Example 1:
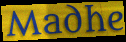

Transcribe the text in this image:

Madhe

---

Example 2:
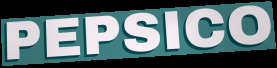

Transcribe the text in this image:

PEPSICO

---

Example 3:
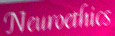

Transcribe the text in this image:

Neuroethics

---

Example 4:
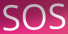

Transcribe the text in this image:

SOS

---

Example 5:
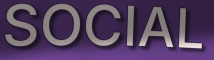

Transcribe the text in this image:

SOCIAL